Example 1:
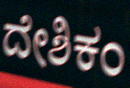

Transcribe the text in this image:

ದೇಶಿಕಂ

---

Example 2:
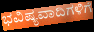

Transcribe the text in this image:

ಭವಿಷ್ಯವಾದಿಗಳಿಗೆ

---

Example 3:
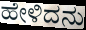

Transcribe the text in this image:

ಹೇಳಿದನು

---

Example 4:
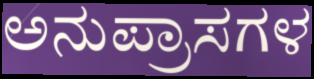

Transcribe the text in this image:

ಅನುಪ್ರಾಸಗಳ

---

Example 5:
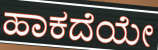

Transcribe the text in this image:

ಹಾಕದೆಯೇ